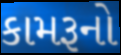
કામરૂનો